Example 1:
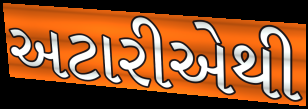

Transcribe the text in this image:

અટારીએથી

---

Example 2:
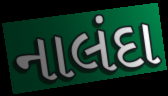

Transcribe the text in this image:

નાલંદા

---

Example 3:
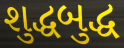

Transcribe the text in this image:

શુદ્ધબુદ્ધ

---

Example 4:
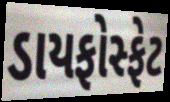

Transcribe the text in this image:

ડાયફોસ્ફેટ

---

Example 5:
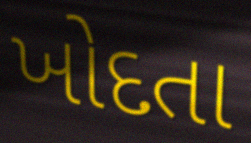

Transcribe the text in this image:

ખોદતા